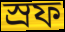
স্রফ